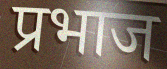
प्रभाज